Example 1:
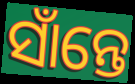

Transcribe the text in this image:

ସାଁନ୍ତେ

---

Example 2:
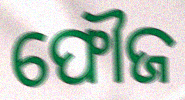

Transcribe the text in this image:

ଫୌଜ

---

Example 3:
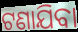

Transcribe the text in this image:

ଟଣାଯିବା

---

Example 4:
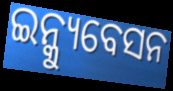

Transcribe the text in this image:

ଇନ୍କ୍ୟୁବେସନ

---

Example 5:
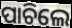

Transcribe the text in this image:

ପାଚିଲେ